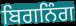
ਬਿਗਨਿੰਗ